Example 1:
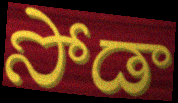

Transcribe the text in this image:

సోడా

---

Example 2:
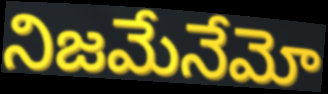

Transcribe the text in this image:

నిజమేనేమో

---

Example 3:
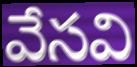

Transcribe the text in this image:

వేసవి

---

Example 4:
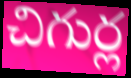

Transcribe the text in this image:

చిగుర్ల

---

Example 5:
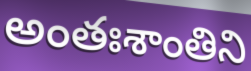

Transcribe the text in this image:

అంతఃశాంతిని